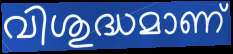
വിശുദ്ധമാണ്